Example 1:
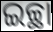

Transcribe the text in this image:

ଇଚ୍ଛା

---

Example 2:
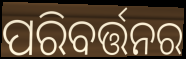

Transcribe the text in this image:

ପରିବର୍ତ୍ତନର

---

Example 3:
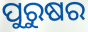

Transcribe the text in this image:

ପୁରୁଷର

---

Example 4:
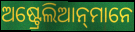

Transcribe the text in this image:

ଅଷ୍ଟ୍ରେଲିଆନ୍‌ମାନେ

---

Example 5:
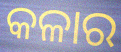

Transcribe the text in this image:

କଳାର